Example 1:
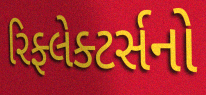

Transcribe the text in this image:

રિફ્લેક્ટર્સનો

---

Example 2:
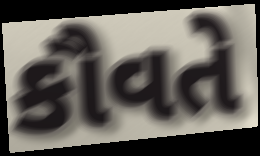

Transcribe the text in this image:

કૌવતે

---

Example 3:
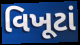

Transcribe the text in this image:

વિખૂટાં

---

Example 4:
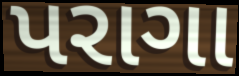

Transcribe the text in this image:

પરાગા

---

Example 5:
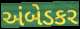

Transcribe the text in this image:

અંબેડકર